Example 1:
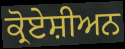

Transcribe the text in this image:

ਕ੍ਰੋਏਸ਼ੀਅਨ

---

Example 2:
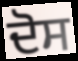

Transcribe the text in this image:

ਦੋਸ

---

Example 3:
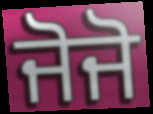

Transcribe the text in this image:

ਜੋਜੋ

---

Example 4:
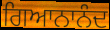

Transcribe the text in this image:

ਗਿਆਨਾਨੰਦ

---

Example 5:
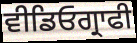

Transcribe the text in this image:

ਵੀਡਿਓਗ੍ਰਾਫੀ